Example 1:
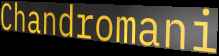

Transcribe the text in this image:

Chandromani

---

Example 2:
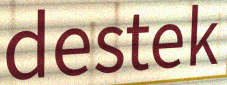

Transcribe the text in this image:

destek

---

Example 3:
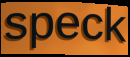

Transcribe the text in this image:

speck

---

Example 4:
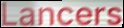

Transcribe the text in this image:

Lancers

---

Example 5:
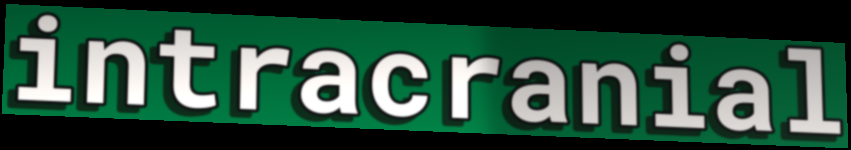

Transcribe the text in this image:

intracranial